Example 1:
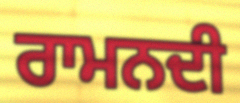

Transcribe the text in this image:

ਰਾਮਨਦੀ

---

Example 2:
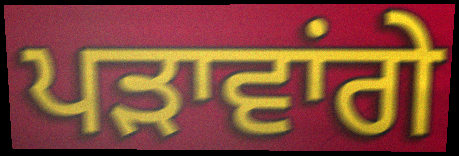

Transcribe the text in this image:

ਪੜਾਵਾਂਗੇ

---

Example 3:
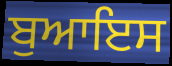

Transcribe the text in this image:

ਬੁਆਇਸ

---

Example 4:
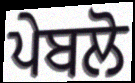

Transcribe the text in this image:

ਪੇਬਲੋ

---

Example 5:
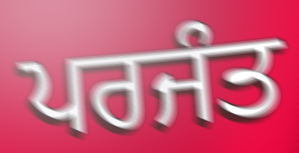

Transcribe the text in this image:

ਪਰਜੰਤ